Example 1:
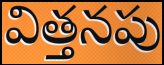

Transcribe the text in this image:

విత్తనపు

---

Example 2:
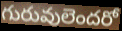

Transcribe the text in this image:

గురువులెందరో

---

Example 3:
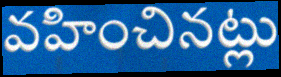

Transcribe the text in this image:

వహించినట్లు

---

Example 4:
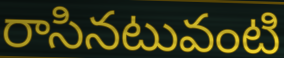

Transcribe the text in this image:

రాసినటువంటి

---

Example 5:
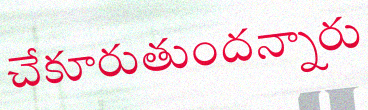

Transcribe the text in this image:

చేకూరుతుందన్నారు